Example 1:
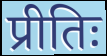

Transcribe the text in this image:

प्रीतिः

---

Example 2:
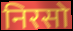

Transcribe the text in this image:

निरसो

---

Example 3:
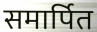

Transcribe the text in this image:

समार्पित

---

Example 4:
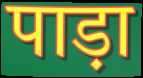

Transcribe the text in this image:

पाड़ा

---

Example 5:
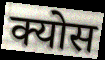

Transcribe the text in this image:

क्योस